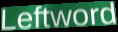
Leftword